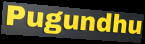
Pugundhu